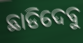
ଛାଡିଦେବୁ